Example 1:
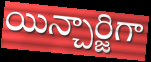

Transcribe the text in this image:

యిన్చార్జిగా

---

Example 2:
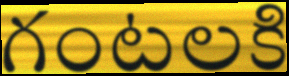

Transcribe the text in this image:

గంటలకి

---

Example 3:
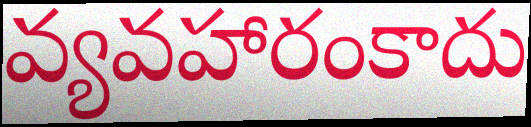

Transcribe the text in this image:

వ్యవహారంకాదు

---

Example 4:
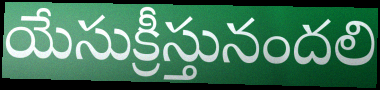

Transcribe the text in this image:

యేసుక్రీస్తునందలి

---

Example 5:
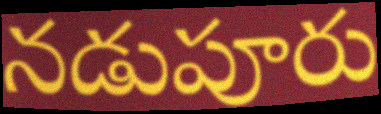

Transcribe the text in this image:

నడుపూరు